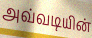
அவ்வடியின்